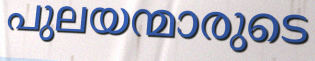
പുലയന്മാരുടെ